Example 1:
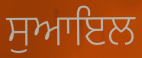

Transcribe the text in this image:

ਸੁਆਇਲ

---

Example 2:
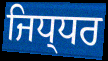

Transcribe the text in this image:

ਜਿਧ੍ਧਰ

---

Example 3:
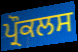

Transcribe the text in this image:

ਪ੍ਰੌਕਲਸ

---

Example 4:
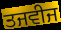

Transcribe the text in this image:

ਤਜਵੀਜ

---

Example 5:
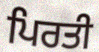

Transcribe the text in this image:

ਪਿਰਤੀ